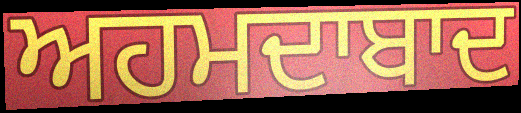
ਅਹਮਦਾਬਾਦ